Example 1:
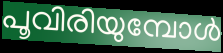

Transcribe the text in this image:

പൂവിരിയുമ്പോൾ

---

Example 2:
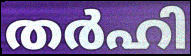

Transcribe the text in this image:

തർഹി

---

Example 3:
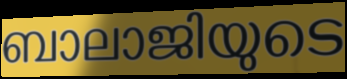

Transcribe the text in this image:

ബാലാജിയുടെ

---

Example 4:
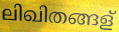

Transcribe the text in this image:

ലിഖിതങ്ങള്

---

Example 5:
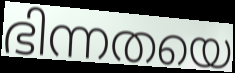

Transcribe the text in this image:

ഭിന്നതയെ